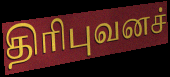
திரிபுவனச்